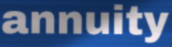
annuity